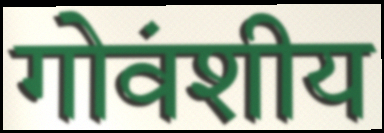
गोवंशीय